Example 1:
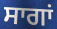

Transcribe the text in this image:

ਸਾਗਾਂ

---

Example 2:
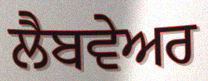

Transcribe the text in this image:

ਲੈਬਵੇਅਰ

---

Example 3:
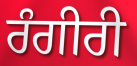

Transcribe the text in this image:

ਰੰਗੀਰੀ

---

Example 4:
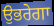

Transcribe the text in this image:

ਉਭਰੇਗਾ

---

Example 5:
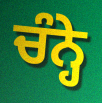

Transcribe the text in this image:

ਚੰਨ੍ਹੇ